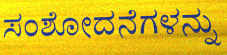
ಸಂಶೋದನೆಗಳನ್ನು